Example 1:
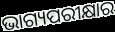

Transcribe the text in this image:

ଭାଗ୍ୟପରୀକ୍ଷାର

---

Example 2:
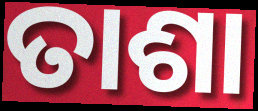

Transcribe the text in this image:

ତାଶା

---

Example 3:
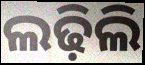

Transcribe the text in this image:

ଲଢ଼ିଲି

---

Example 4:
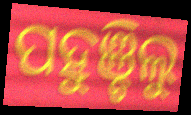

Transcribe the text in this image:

ପହୁଞ୍ଚିଲୁ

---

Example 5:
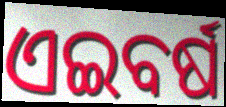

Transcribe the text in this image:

ଏଇବର୍ଷ